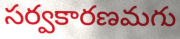
సర్వకారణమగు